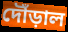
দৌঁড়াল